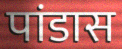
पांडास